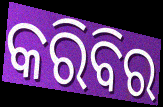
କରିବିର